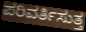
ಪರಿವರ್ತಿಸುತ್ತ